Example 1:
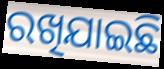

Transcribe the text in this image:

ରଖିଯାଇଛି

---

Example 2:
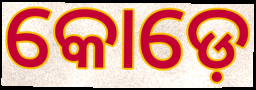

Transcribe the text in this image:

କୋଡ଼େ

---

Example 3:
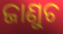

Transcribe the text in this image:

ଜାଣୁଚ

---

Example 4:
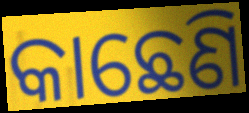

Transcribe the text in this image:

କାଛେଣି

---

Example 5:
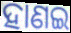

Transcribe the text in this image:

ହାଣଇ